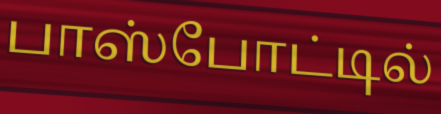
பாஸ்போட்டில்